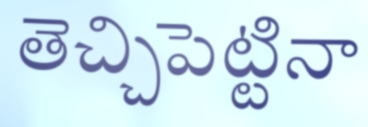
తెచ్చిపెట్టినా